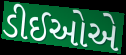
ડીઈઓએ